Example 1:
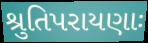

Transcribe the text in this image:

શ્રુતિપરાયણાઃ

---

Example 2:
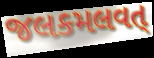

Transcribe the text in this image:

જલકમલવત્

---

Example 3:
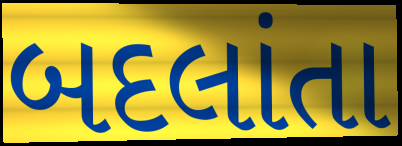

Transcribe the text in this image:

બદલાંતા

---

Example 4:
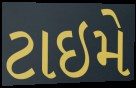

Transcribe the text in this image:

ટાઇમે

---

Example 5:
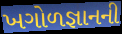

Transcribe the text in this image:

ખગોળજ્ઞાનની